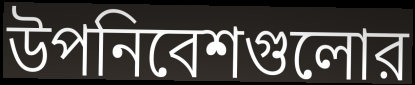
উপনিবেশগুলোর